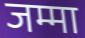
जम्मा